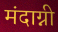
मंदाग्नी